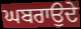
ਘਬਰਾਉਦੇ